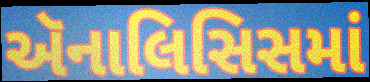
ઍનાલિસિસમાં